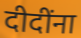
दीदींना